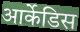
आर्केडिस